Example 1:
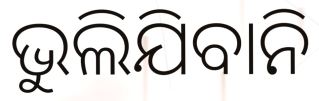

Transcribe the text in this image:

ଭୁଲିଯିବାନି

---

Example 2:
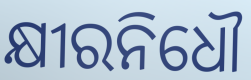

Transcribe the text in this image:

କ୍ଷୀରନିଧୌ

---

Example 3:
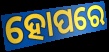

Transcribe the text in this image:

ହୋପରେ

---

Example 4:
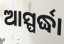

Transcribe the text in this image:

ଆସ୍ପର୍ଦ୍ଧା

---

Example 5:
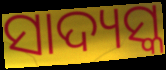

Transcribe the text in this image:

ସାଦ୍ୟସ୍କ